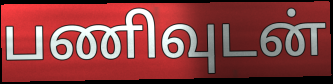
பணிவுடன்